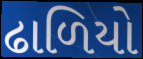
ઢાળિયો